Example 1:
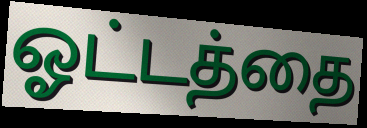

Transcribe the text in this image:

ஓட்டத்தை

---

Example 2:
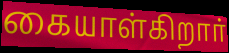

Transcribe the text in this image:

கையாள்கிறார்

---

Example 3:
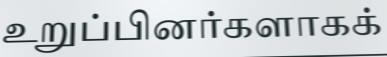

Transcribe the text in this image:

உறுப்பினர்களாகக்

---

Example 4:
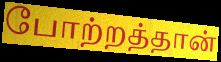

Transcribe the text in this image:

போற்றத்தான்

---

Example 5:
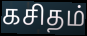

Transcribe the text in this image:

கசிதம்